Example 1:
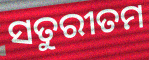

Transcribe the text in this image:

ସତୁରୀତମ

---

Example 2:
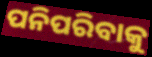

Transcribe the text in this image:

ପନିପରିବାକୁ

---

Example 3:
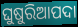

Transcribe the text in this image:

ଘୁଷୁରିଆପଦା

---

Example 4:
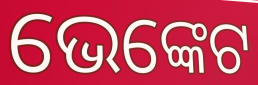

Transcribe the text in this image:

ଭେଙ୍କେଟ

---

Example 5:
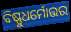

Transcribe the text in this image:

ବିଷ୍ଣୁଧର୍ମୋତ୍ତର